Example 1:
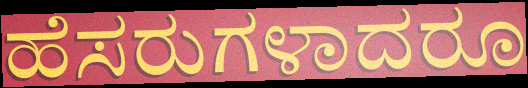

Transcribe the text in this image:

ಹೆಸರುಗಳಾದರೂ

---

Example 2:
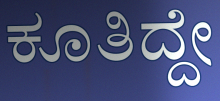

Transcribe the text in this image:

ಕೂತಿದ್ದೇ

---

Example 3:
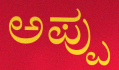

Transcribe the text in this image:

ಅಪ್ಪು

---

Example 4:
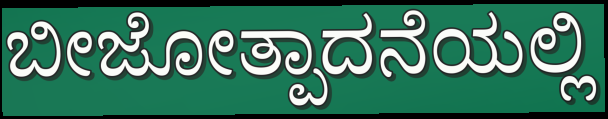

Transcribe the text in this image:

ಬೀಜೋತ್ಪಾದನೆಯಲ್ಲಿ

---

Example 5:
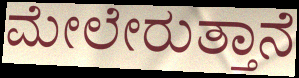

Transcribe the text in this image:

ಮೇಲೇರುತ್ತಾನೆ